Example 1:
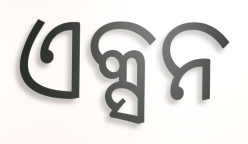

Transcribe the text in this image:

ଏକ୍ସନ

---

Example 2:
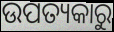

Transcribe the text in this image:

ଉପତ୍ୟକାରୁ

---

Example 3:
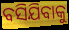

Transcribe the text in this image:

ବସିଯିବାକୁ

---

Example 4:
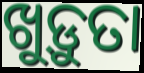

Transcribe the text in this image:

ଖୁଡ଼ୁତା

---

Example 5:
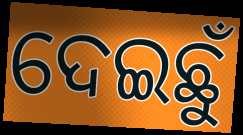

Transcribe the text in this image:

ଦେଇଛୁଁ